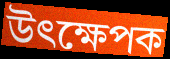
উৎক্ষেপক